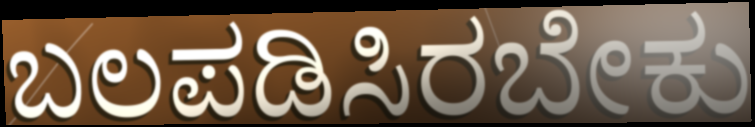
ಬಲಪಡಿಸಿರಬೇಕು